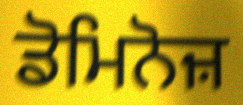
ਡੋਮਿਨੋਜ਼